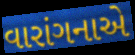
વારાંગનાએ